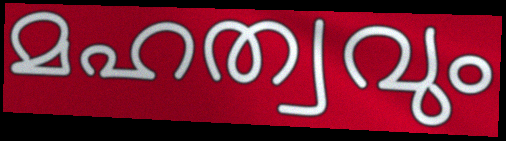
മഹത്വവും